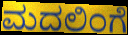
ಮದಲಿಂಗೆ